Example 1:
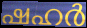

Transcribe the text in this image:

ഷഹർ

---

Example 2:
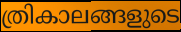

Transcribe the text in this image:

ത്രികാലങ്ങളുടെ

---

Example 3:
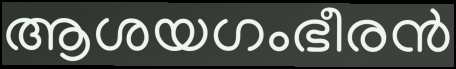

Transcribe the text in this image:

ആശയഗംഭീരൻ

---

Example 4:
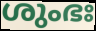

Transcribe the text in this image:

ശുംഭഃ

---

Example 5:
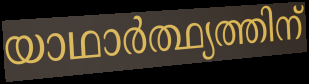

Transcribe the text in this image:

യാഥാർത്ഥ്യത്തിന്